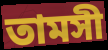
তামসী